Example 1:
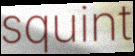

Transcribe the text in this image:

squint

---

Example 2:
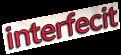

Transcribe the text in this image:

interfecit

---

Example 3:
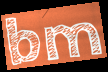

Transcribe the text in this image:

bm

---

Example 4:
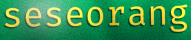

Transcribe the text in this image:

seseorang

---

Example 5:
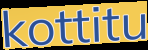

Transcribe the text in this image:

kottitu